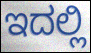
ಇದಲ್ಲಿ